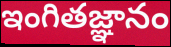
ఇంగితజ్ఞానం